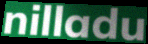
nilladu